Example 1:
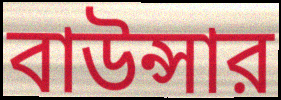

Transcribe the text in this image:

বাউন্সার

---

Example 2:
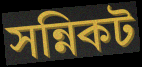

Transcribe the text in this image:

সন্নিকট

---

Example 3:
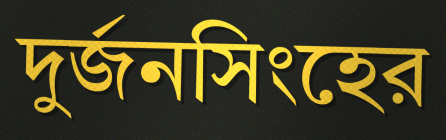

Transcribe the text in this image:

দুর্জনসিংহের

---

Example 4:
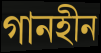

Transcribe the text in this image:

গানহীন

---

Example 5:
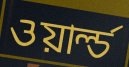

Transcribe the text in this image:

ওয়ার্ল্ড